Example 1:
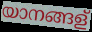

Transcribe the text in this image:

യാനങ്ങള്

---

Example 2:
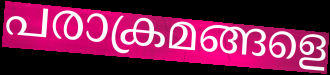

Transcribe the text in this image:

പരാക്രമങ്ങളെ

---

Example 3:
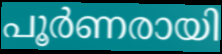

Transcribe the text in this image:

പൂർണരായി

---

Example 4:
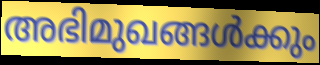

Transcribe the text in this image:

അഭിമുഖങ്ങൾക്കും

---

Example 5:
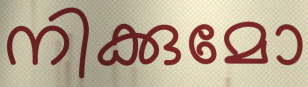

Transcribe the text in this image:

നിക്കുമോ